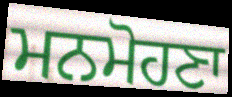
ਮਨਮੋਹਣਾ